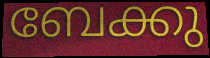
ബേക്കു